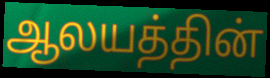
ஆலயத்தின்